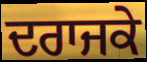
ਦਰਾਜਕੇ